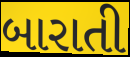
બારાતી